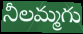
నీలమ్మగు